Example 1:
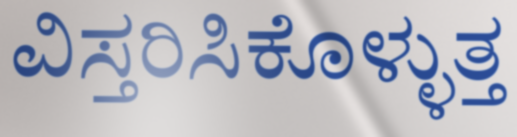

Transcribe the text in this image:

ವಿಸ್ತರಿಸಿಕೊಳ್ಳುತ್ತ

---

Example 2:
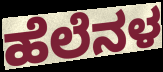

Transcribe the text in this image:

ಹೆಲೆನಳ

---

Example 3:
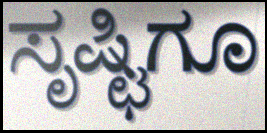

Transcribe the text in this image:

ಸೃಷ್ಟಿಗೂ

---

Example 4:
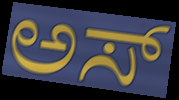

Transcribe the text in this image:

ಅಸ್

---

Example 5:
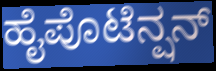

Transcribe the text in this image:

ಹೈಪೊಟೆನ್ಷನ್